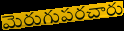
మెరుగుపరచారు